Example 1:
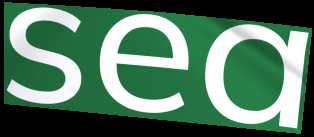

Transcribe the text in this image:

sea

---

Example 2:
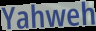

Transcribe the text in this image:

Yahweh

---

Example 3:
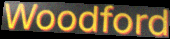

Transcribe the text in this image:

Woodford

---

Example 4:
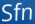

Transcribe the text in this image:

Sfn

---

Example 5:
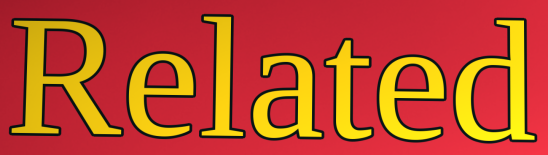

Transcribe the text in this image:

Related